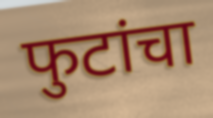
फुटांचा